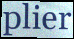
plier